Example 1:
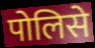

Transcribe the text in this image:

पोलिसे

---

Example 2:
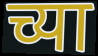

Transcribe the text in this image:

च्या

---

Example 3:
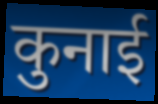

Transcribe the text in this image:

कुनाई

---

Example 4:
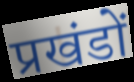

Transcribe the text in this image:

प्रखंडों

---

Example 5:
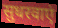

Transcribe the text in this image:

सुधरवाएं